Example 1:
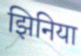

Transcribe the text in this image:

झिनिया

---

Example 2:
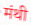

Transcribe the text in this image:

मंथी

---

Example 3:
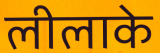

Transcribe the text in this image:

लीलाके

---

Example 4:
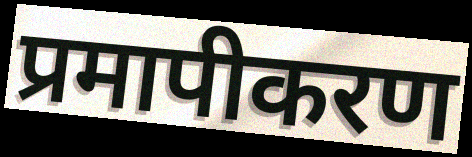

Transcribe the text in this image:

प्रमापीकरण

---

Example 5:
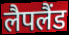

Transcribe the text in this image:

लैपलैंड